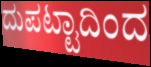
ದುಪಟ್ಟಾದಿಂದ